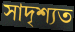
সাদৃশ্যত